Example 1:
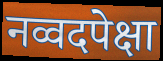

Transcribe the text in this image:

नव्वदपेक्षा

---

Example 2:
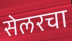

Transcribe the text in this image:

सेलरचा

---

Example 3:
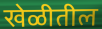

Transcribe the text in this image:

खेळीतील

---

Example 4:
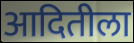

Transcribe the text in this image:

आदितीला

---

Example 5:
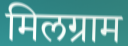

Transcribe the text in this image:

मिलग्राम